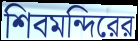
শিবমন্দিরের